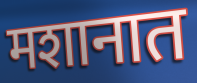
मशानात